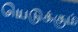
யெடுக்கும்